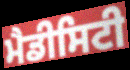
ਮੈਡੀਸਿਟੀ